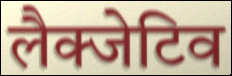
लैक्जेटिव